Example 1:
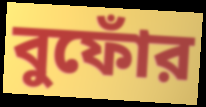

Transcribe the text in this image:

বুফোঁর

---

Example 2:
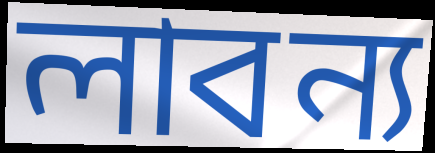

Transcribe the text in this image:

লাবন্য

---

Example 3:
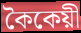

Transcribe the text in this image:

কৈকেয়ী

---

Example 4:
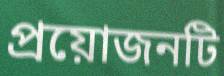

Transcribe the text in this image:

প্রয়োজনটি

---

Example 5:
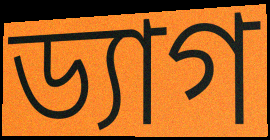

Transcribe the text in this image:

ড্যাগ